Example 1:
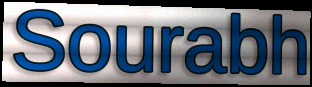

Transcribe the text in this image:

Sourabh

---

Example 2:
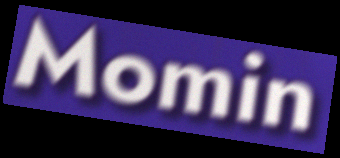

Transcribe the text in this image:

Momin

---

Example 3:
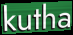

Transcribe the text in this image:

kutha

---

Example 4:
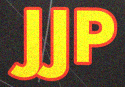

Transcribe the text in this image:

JJP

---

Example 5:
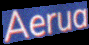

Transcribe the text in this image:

Aerua